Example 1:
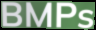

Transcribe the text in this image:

BMPs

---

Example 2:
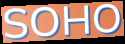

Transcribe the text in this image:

SOHO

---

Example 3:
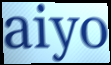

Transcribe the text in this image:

aiyo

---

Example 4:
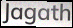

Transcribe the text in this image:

Jagath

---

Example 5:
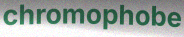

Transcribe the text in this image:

chromophobe